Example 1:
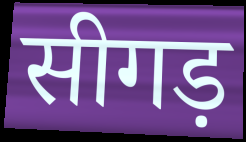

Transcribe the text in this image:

सीगड़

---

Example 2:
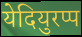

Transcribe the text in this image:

येदियुरप्प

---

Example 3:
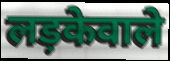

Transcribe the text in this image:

लड़केवाले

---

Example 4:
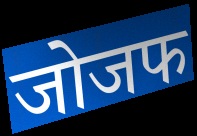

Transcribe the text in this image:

जोजफ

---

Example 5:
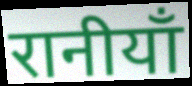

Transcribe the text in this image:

रानीयाँ